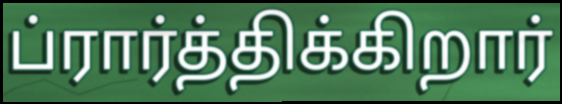
ப்ரார்த்திக்கிறார்